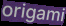
origami